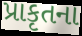
પ્રાકૃતના